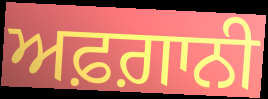
ਅਫ਼ਗ਼ਾਨੀ